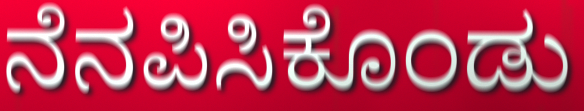
ನೆನಪಿಸಿಕೊಂಡು